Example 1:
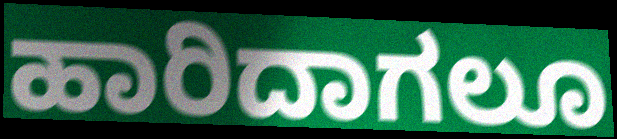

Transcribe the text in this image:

ಹಾರಿದಾಗಲೂ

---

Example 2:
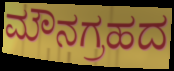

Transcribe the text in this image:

ಮೌನಗ್ರಹದ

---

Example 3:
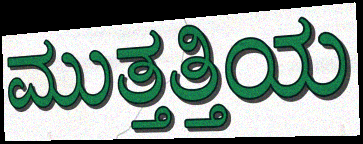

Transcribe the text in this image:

ಮುತ್ತತ್ತಿಯ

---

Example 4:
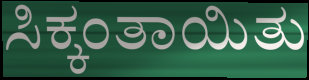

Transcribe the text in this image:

ಸಿಕ್ಕಂತಾಯಿತು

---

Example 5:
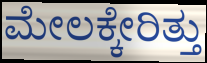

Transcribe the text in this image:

ಮೇಲಕ್ಕೇರಿತ್ತು